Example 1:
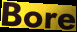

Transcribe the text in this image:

Bore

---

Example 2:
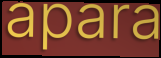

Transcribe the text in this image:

apara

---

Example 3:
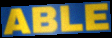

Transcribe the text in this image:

ABLE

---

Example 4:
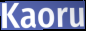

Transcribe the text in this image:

Kaoru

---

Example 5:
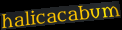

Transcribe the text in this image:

halicacabum